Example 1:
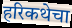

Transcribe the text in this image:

हरिकथेचा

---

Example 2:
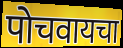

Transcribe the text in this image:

पोचवायचा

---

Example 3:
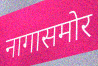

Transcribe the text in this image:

नागासमोर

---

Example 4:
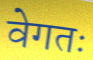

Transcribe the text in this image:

वेगतः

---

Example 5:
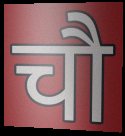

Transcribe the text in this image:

चौ